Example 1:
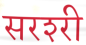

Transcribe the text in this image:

सरश्री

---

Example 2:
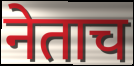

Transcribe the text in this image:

नेताच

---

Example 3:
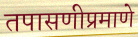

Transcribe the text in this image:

तपासणीप्रमाणे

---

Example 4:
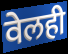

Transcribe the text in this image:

वेलही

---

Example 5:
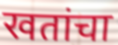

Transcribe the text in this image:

खतांचा